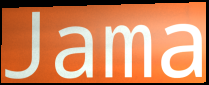
Jama